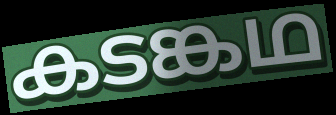
കടങ്കഥ